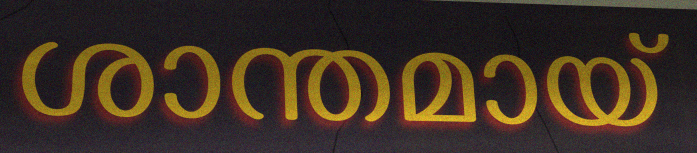
ശാന്തമായ്